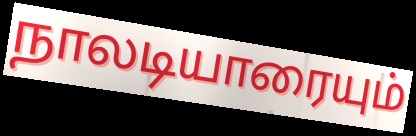
நாலடியாரையும்